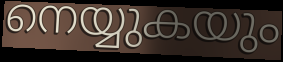
നെയ്യുകയും